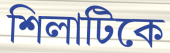
শিলাটিকে